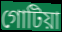
গোটিয়া